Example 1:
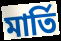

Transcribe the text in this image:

মার্তি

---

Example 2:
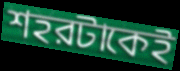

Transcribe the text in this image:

শহরটাকেই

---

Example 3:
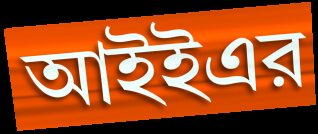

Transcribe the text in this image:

আইইএর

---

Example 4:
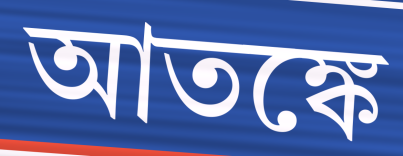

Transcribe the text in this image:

আতঙ্কে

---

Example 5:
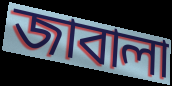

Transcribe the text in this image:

জাবালা